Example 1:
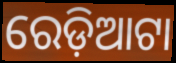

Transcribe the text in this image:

ରେଡ଼ିଆଟା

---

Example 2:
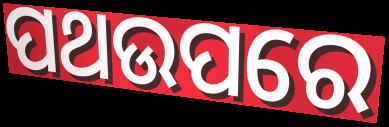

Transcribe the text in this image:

ପଥଉପରେ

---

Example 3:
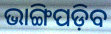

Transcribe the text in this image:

ଭାଙ୍ଗିପଡ଼ିବ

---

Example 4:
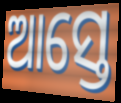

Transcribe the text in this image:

ଆସ୍ତେ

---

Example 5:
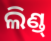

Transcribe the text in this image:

ଲିଣ୍ଡ୍